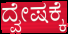
ದ್ವೇಷಕ್ಕೆ